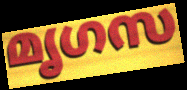
മൃഗസ